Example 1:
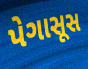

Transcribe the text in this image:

પેગાસૂસ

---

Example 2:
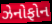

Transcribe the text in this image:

ઝેનોફોન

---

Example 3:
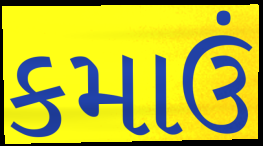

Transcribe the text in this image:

કમાઉં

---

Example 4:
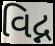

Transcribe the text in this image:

વિદ્ન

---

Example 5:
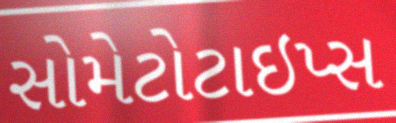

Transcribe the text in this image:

સોમેટોટાઇપ્સ